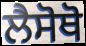
ਲੈਸੋਥੋ